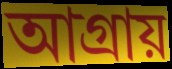
আগ্রায়